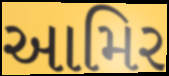
આમિર